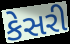
કેસરી